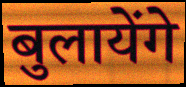
बुलायेंगे